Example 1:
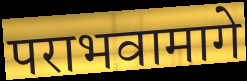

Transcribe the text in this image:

पराभवामागे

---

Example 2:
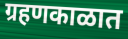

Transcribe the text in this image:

ग्रहणकाळात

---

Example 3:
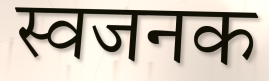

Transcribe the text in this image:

स्वजनक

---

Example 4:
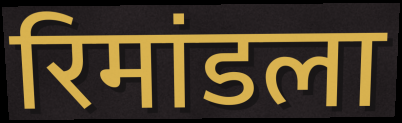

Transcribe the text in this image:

रिमांडला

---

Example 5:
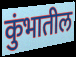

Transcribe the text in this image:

कुंभातील